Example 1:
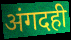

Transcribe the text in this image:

अंगदही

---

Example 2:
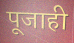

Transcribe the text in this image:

पूजाही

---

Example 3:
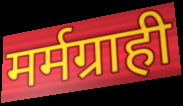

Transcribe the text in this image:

मर्मग्राही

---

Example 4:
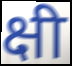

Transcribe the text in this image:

क्षी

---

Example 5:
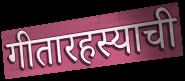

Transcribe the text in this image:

गीतारहस्याची